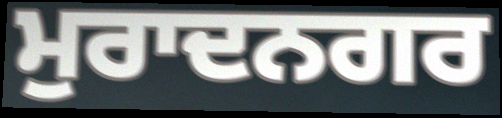
ਮੁਰਾਦਨਗਰ